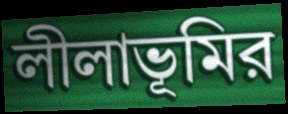
লীলাভূমির